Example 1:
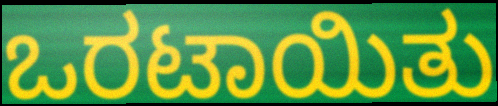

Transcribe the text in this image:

ಒರಟಾಯಿತು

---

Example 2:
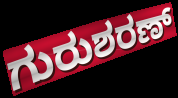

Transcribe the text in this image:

ಗುರುಶರಣ್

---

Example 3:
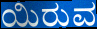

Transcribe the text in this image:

ಯಿರುವ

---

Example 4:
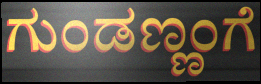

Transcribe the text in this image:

ಗುಂಡಣ್ಣಂಗೆ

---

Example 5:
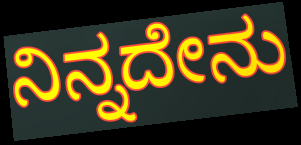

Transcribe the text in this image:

ನಿನ್ನದೇನು